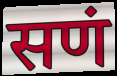
सणं